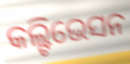
କଲ୍ଟିଭେସନ